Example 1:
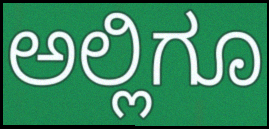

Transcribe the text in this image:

ಅಲ್ಲಿಗೂ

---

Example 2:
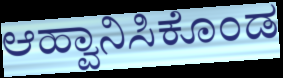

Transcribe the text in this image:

ಆಹ್ವಾನಿಸಿಕೊಂಡ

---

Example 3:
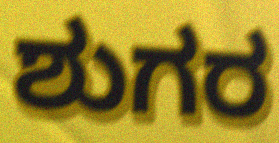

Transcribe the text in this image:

ಶುಗರ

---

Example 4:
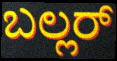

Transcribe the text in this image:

ಬಲ್ಲರ್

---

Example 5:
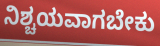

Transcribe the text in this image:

ನಿಶ್ಚಯವಾಗಬೇಕು